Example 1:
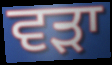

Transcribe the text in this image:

ਵੜਾ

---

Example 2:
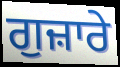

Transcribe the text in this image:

ਗੁਜ਼ਾਰੇ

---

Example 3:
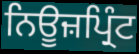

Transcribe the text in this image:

ਨਿਊਜ਼ਪ੍ਰਿੰਟ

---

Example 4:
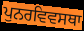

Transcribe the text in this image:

ਪੁਨਰਵਿਵਸਥਾ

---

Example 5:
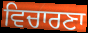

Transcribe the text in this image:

ਵਿਚਾਰਣਾ